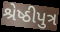
શ્રેષ્ઠીપુત્ર